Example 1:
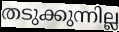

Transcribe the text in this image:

തടുക്കുന്നില്ല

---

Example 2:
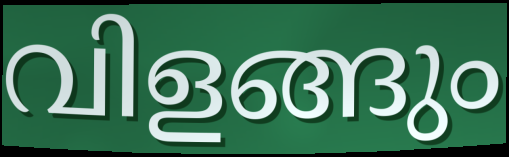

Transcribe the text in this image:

വിളങ്ങും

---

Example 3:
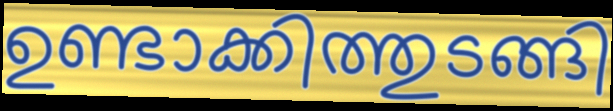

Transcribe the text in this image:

ഉണ്ടാക്കിത്തുടങ്ങി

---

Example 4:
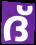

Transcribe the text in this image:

ദ്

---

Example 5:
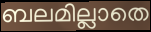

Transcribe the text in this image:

ബലമില്ലാതെ